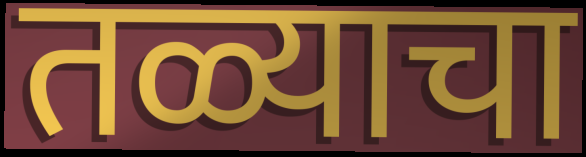
तळ्याचा